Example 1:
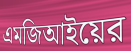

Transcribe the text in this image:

এমজিআইয়ের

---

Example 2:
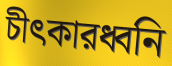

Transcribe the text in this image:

চীৎকারধ্বনি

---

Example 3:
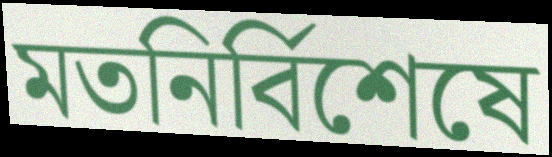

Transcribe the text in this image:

মতনির্বিশেষে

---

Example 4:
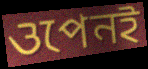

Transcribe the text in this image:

ওপেনই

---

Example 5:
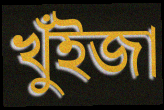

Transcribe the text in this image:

খুঁইজা